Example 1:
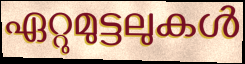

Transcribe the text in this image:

ഏറ്റുമുട്ടലുകൾ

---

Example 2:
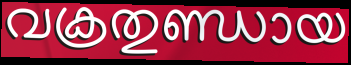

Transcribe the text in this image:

വക്രതുണ്ഡായ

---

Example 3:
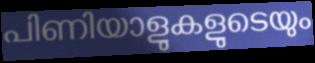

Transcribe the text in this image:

പിണിയാളുകളുടെയും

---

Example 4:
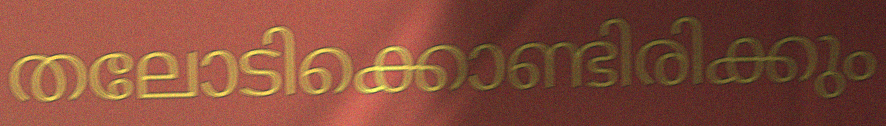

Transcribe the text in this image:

തലോടിക്കൊണ്ടിരിക്കും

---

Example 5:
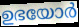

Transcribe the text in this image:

ഉഭയോർ